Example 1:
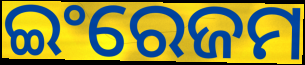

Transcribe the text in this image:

ଇଂରେଜମ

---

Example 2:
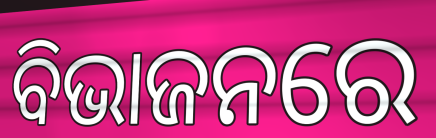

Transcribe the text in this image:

ବିଭାଜନରେ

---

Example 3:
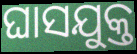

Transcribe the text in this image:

ଘାସଯୁକ୍ତ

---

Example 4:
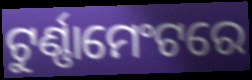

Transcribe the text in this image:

ଟୁର୍ଣ୍ଣାମେଂଟରେ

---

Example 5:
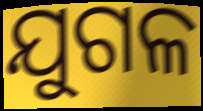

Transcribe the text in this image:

ଯୁଗଳ